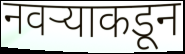
नवऱ्याकडून